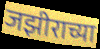
जझीराच्या